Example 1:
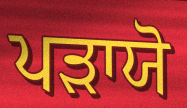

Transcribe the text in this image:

ਪੜਾਯੋ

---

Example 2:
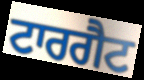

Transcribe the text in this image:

ਟਾਰਗੈਟ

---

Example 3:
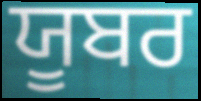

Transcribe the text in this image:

ਯੂਬਰ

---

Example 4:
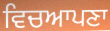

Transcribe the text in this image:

ਵਿਚਆਪਣਾ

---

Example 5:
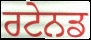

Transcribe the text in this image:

ਰਟੇਨਡ